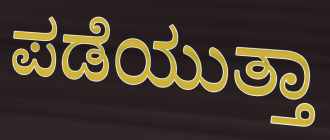
ಪಡೆಯುತ್ತಾ